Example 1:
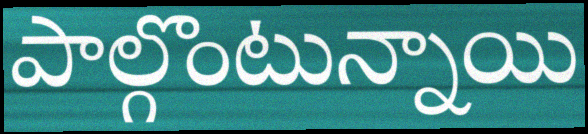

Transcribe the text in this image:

పాల్గొంటున్నాయి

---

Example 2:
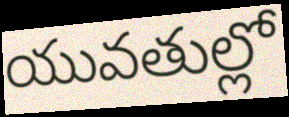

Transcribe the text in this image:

యువతుల్లో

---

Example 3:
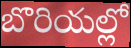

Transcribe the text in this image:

బొరియల్లో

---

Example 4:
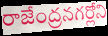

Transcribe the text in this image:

రాజేంద్రనగర్లోని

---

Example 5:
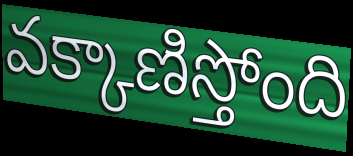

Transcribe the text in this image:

వక్కాణిస్తోంది